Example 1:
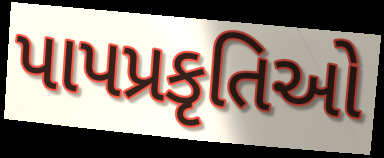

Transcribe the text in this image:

પાપપ્રકૃતિઓ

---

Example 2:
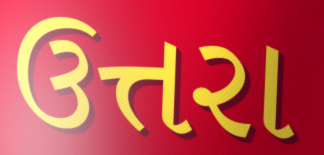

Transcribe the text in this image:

ઉત્તરા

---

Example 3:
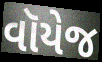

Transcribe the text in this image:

વૉયેજ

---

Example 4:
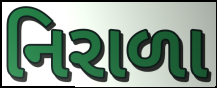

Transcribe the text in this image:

નિરાળા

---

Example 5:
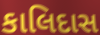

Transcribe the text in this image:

કાલિદાસ